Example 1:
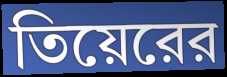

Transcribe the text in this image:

তিয়েরের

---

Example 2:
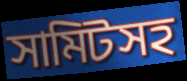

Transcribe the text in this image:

সামিটসহ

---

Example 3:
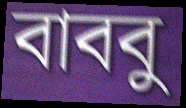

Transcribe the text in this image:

বাববু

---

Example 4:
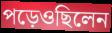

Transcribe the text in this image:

পড়েওছিলেন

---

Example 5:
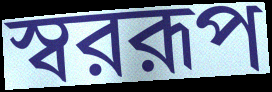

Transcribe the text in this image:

স্বররূপ